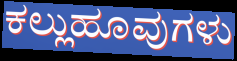
ಕಲ್ಲುಹೂವುಗಳು